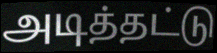
அடித்தட்டு